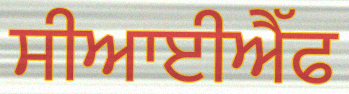
ਸੀਆਈਐੱਫ